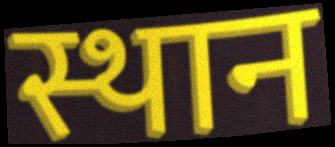
स्थान